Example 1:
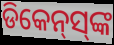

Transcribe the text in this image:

ଡିକେନ୍‌ସ୍‌ଙ୍କ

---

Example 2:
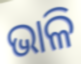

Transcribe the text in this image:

ଭାଳି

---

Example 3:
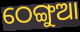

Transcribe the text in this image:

ଠେଙ୍ଗୁଆ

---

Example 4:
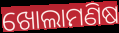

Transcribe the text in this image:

ଖୋଲାମଣିଷ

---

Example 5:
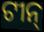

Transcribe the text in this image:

ଟୀନ୍